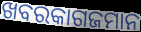
ଖବରକାଗଜମାନ